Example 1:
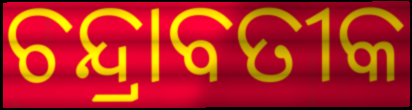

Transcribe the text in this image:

ଚନ୍ଦ୍ରାବତୀକ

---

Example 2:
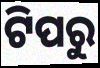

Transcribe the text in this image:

ଟିପରୁ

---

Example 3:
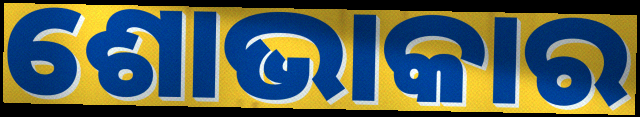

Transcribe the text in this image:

ଶୋଭାକାର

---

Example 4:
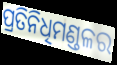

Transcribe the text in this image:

ପ୍ରତିନିଧିମଣ୍ଡଳର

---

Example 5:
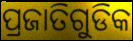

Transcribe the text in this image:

ପ୍ରଜାତିଗୁଡିକ